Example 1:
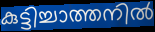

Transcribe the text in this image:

കുട്ടിച്ചാത്തനിൽ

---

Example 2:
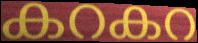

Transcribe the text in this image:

കറകറ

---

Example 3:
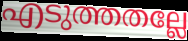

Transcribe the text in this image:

എടുത്തതല്ലേ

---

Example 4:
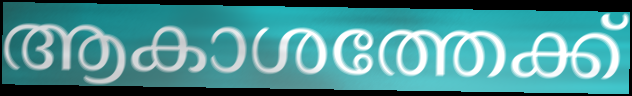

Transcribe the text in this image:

ആകാശത്തേക്ക്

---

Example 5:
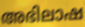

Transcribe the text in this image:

അഭിലാഷ